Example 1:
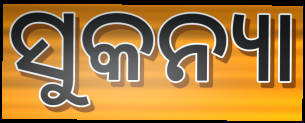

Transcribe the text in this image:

ସୁକନ୍ୟା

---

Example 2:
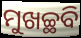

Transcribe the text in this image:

ମୁଖଚ୍ଛବି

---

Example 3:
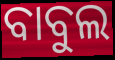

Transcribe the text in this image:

ବାବୁଲ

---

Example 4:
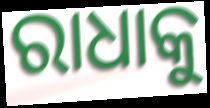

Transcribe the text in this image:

ରାଧାକୁ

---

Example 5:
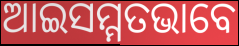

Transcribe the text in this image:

ଆଇସମ୍ମତଭାବେ